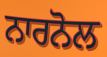
ਨਾਰਨੋਲ